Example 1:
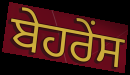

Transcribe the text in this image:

ਬੇਹਰੇਂਸ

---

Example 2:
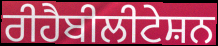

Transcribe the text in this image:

ਰੀਹੈਬੀਲੀਟੇਸ਼ਨ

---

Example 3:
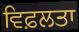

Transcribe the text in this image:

ਵਿਫ਼ਲਤਾ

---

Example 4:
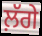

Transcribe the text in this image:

ਲ਼ੱਗੇ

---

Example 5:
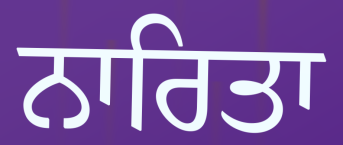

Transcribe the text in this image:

ਨਾਰਿਤਾ